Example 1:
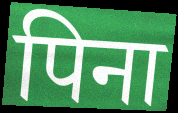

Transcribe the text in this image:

पिना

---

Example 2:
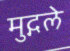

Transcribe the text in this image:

मुद्गले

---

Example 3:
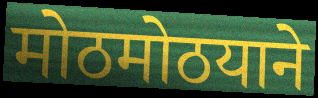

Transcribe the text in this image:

मोठमोठयाने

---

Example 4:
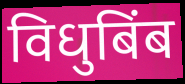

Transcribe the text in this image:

विधुबिंब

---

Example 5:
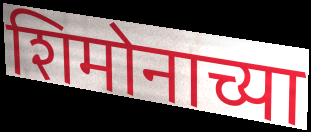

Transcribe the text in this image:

शिमोनाच्या